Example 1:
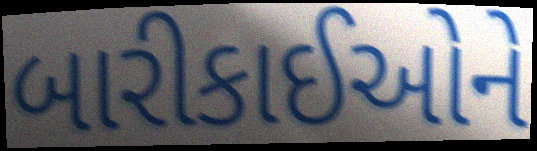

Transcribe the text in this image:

બારીકાઈઓને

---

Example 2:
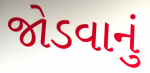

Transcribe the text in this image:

જોડવાનું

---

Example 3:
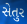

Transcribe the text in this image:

સેતુર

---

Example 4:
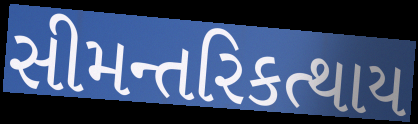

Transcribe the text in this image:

સીમન્તરિકત્થાય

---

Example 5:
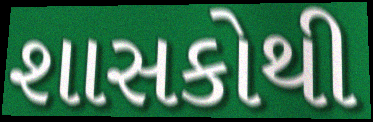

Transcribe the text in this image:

શાસકોથી